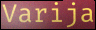
Varija